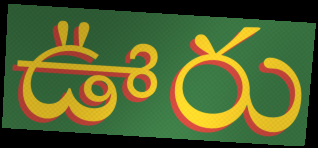
ఊరు